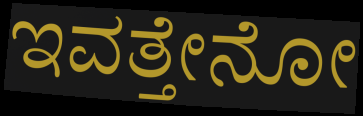
ಇವತ್ತೇನೋ